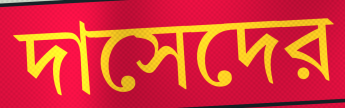
দাসেদের